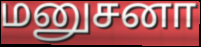
மனுசனா